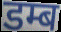
डम्ब